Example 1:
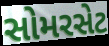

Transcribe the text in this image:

સોમરસેટ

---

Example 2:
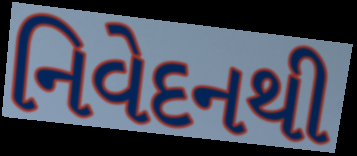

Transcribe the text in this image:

નિવેદનથી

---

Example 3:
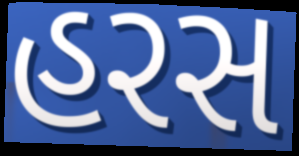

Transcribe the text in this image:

હરસ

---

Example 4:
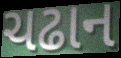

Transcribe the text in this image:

ચઢાન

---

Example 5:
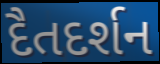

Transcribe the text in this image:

દૈતદર્શન